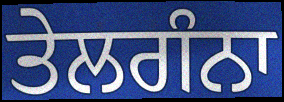
ਤੇਲਗੰਨਾ